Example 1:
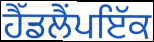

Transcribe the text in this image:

ਹੈੱਡਲੈਂਪਇੱਕ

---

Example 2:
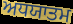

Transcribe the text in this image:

ਅਧਯਾਤਮ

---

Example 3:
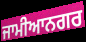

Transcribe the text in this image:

ਜਾਮੀਆਨਗਰ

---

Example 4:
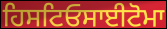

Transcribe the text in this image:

ਹਿਸਟਿਓਸਾਈਟੋਮਾ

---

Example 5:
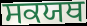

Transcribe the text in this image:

ਸਕਯਥ